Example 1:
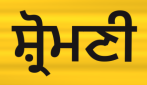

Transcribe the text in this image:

ਸ਼੍ਰੋਮਣੀ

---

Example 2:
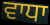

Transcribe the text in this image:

ਵਾਧਾ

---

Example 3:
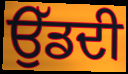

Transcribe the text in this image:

ਉੱਡਦੀ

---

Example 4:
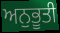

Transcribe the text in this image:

ਅਨੁਭੂਤੀ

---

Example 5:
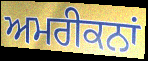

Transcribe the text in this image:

ਅਮਰੀਕਨਾਂ